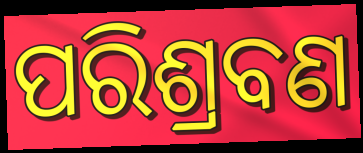
ପରିଶ୍ରବଣ